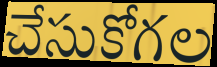
చేసుకోగల